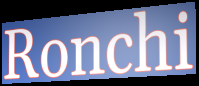
Ronchi